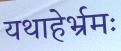
यथाहेर्भ्रमः